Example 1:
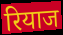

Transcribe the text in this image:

रियाज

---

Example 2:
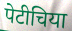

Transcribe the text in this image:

पेटीचिया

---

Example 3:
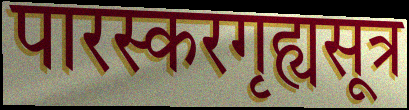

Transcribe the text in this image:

पारस्करगृह्यसूत्र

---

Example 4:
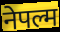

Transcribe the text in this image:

नेपल्म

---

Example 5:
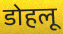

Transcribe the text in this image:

डोहलू